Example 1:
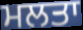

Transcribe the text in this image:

ਮਲਤਾ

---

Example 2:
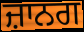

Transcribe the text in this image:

ਜ਼ਾਨਗ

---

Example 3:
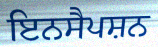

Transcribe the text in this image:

ਇਨਸੈਪਸ਼ਨ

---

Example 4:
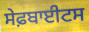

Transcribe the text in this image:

ਸੇਫ਼ਬਾਈਟਸ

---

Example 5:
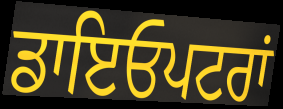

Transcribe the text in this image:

ਡਾਇਓਪਟਰਾਂ